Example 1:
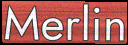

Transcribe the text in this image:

Merlin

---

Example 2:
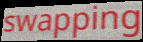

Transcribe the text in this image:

swapping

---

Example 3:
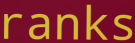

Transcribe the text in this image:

ranks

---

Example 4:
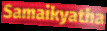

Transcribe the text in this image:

Samaikyatha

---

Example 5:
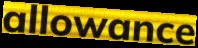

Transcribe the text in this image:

allowance